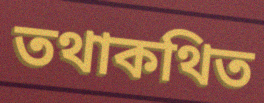
তথাকথিত